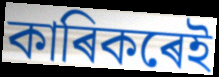
কাৰিকৰেই